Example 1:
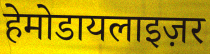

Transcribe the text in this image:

हेमोडायलाइज़र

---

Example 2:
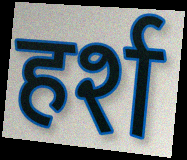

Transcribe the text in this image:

हर्श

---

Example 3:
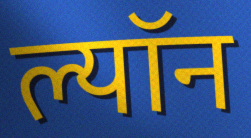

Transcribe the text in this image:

ल्यॉन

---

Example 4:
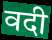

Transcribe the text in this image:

वदी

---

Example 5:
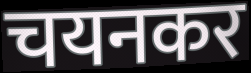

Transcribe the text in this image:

चयनकर